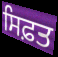
ਸਿਫ਼ਤ